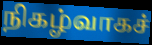
நிகழ்வாகச்